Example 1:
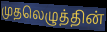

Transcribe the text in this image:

முதலெழுத்தின்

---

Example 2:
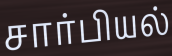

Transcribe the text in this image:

சார்பியல்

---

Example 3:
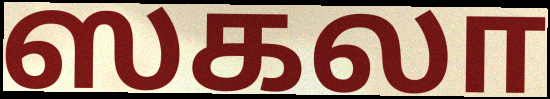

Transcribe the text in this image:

ஸகலா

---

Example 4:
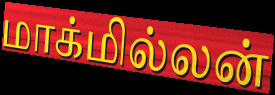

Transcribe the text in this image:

மாக்மில்லன்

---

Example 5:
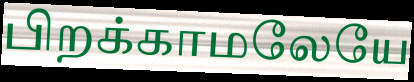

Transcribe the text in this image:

பிறக்காமலேயே